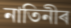
নাতিনীৰ